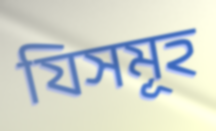
যিসমূহ